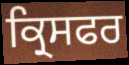
ਕ੍ਰਿਸਫਰ